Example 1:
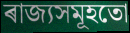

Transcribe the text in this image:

ৰাজ্যসমূহতো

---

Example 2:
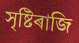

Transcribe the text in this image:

সৃষ্টিৰাজি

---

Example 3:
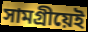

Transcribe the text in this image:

সামগ্ৰীয়েই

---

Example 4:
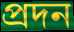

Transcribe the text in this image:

প্ৰদন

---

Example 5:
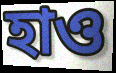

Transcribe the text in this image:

হাও